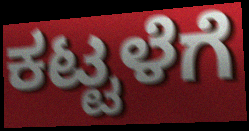
ಕಟ್ಟಳೆಗೆ